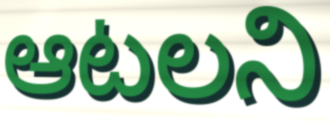
ఆటలని